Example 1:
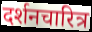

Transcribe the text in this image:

दर्शनचारित्र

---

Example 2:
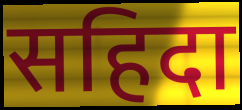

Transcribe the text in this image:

सहिदा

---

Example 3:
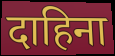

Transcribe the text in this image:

दाहिना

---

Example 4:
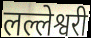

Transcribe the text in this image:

लल्लेश्वरी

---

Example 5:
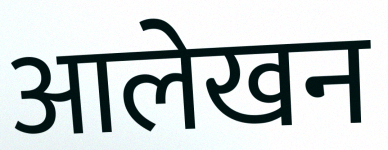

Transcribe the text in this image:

आलेखन